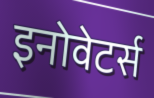
इनोवेटर्स